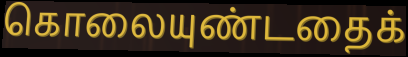
கொலையுண்டதைக்